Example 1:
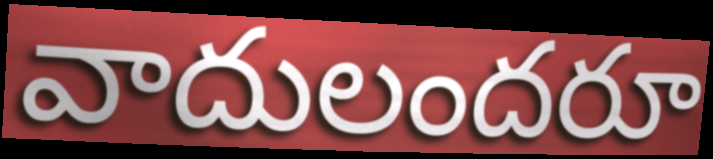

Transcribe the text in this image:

వాదులందరూ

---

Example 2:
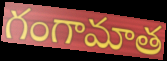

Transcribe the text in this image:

గంగామాత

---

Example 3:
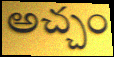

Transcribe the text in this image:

అచ్చం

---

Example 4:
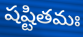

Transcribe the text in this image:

షష్టితమః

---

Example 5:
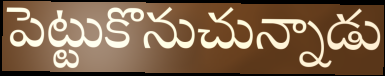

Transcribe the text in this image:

పెట్టుకొనుచున్నాడు